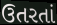
ઉતરતાં